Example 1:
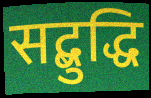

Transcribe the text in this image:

सद्बुद्धि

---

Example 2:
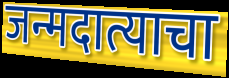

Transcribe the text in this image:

जन्मदात्याचा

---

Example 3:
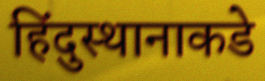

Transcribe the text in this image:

हिंदुस्थानाकडे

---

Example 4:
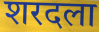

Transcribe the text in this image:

शरदला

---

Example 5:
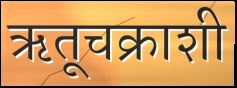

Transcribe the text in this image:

ऋतूचक्राशी